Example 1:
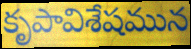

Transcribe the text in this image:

కృపావిశేషమున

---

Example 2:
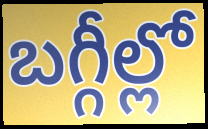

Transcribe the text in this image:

బగ్గీల్లో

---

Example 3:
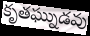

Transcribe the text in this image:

కృతఘ్నుడవు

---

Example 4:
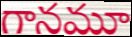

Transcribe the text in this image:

గానమూ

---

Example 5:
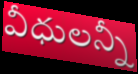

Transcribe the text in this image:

వీధులన్నీ